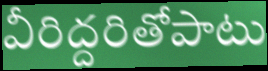
వీరిద్దరితోపాటు